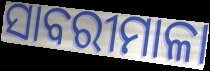
ସାବରୀମାଳା